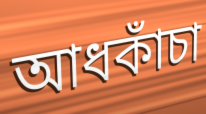
আধকাঁচা